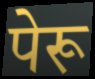
पेरू